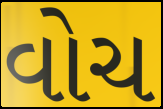
વોચ